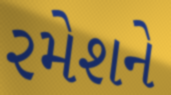
રમેશને